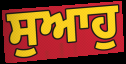
ਸੁਆਹੁ